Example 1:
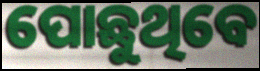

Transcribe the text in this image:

ପୋଛୁଥିବେ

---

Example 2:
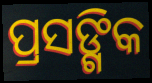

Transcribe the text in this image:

ପ୍ରସଙ୍ଗିକ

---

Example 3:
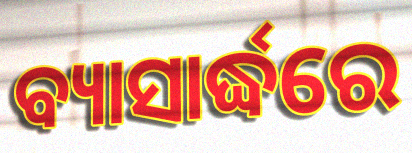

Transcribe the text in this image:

ବ୍ୟାସାର୍ଦ୍ଧରେ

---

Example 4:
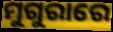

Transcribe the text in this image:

ମୁଗୁରାରେ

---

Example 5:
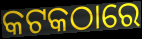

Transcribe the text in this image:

କଟକଠାରେ